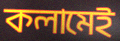
কলামেই